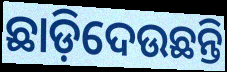
ଛାଡ଼ିଦେଉଛନ୍ତି